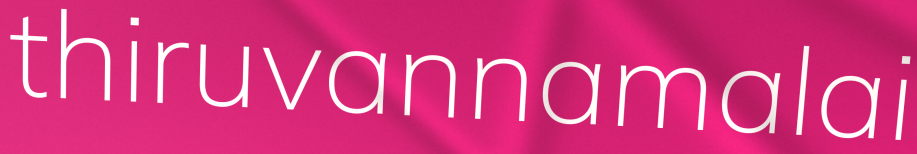
thiruvannamalai